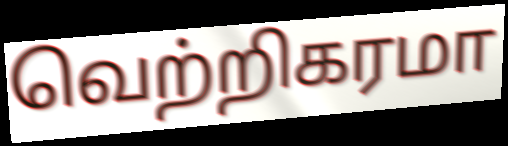
வெற்றிகரமா